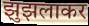
झुझलाकर